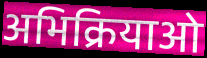
अभिक्रियाओ